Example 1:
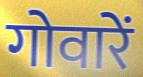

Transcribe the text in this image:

गोवारें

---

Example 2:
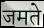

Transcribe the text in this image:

जमते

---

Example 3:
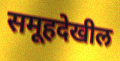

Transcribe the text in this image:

समूहदेखील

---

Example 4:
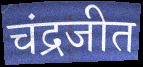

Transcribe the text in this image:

चंद्रजीत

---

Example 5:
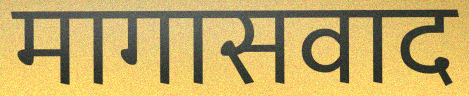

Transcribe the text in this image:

मागासवाद